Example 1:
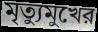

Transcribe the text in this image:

মৃত্যুমুখের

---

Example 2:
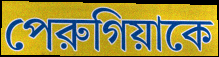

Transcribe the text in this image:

পেরুগিয়াকে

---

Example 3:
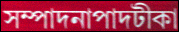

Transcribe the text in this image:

সম্পাদনাপাদটীকা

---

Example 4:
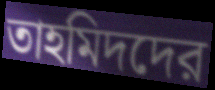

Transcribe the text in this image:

তাহমিদদের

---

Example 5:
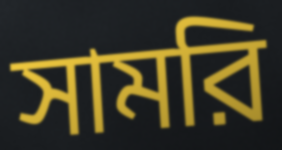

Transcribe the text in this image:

সামরি